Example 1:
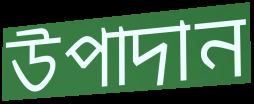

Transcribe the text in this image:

উপাদান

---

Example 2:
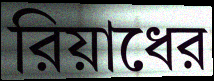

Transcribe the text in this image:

রিয়াধের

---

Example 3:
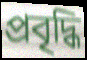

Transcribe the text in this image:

প্রবৃদ্ধি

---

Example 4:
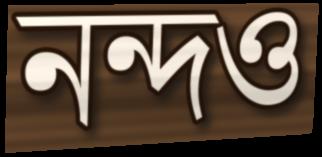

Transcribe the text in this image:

নন্দও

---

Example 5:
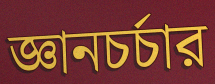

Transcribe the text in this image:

জ্ঞানচর্চার